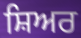
ਸ਼ਿਅਰ